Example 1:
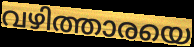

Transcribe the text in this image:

വഴിത്താരയെ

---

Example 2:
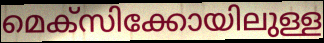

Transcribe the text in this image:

മെക്സിക്കോയിലുള്ള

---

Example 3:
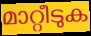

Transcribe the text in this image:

മാറ്റീടുക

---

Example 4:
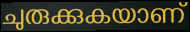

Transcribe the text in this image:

ചുരുക്കുകയാണ്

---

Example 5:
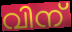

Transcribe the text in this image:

വിന്